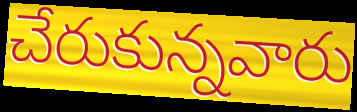
చేరుకున్నవారు